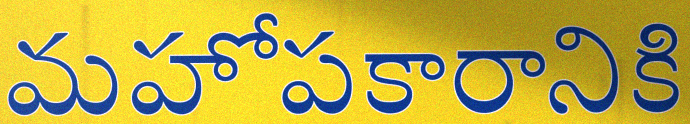
మహోపకారానికి